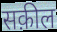
सक़ील